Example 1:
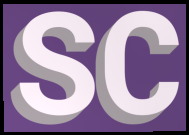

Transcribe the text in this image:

SC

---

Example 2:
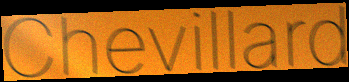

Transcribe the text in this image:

Chevillard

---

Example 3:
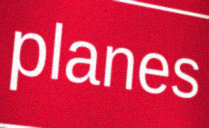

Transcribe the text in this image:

planes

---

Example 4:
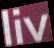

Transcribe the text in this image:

liv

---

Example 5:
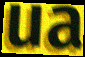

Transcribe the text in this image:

ua